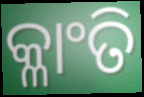
କ୍ଳାଂତି